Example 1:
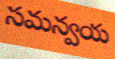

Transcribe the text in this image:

సమన్వయ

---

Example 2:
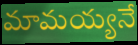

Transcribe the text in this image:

మామయ్యనే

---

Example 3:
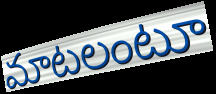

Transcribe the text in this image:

మాటలంటూ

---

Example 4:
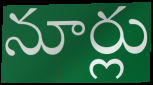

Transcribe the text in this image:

నూర్లు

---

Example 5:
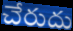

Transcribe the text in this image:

చేరుదు